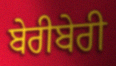
ਬੇਰੀਬੇਰੀ